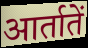
आर्तातें